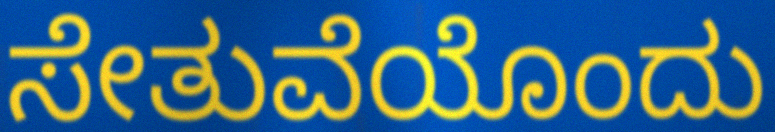
ಸೇತುವೆಯೊಂದು